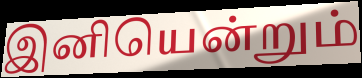
இனியென்றும்